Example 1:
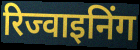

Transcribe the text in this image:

रिज्वाइनिंग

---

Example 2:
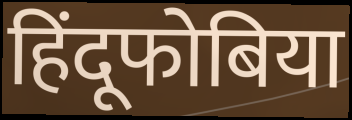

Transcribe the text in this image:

हिंदूफोबिया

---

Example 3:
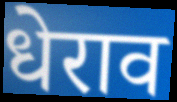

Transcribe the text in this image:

धेराव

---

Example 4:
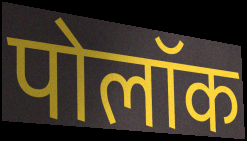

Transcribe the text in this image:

पोलॉक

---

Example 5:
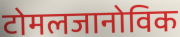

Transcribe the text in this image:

टोमलजानोविक